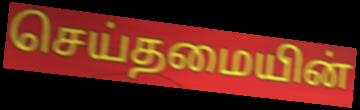
செய்தமையின்